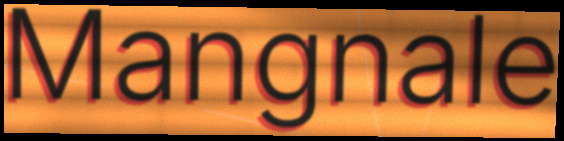
Mangnale